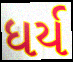
ધર્ય